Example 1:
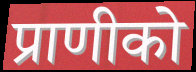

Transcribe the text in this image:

प्राणीको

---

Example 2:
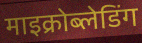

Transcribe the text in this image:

माइक्रोब्लेडिंग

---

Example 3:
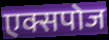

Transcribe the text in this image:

एक्सपोज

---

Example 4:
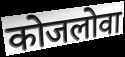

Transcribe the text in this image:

कोजलोवा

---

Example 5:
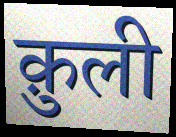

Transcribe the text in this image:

क़ुली